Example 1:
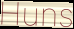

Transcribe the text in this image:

Huns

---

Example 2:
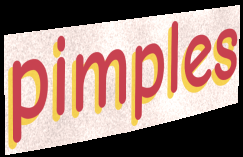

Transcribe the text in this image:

pimples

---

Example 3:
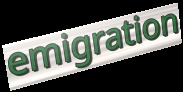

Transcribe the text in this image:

emigration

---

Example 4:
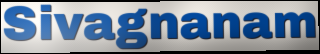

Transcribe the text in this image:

Sivagnanam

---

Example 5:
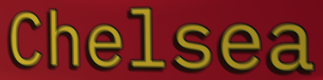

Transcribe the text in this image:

Chelsea